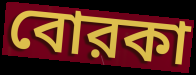
বোরকা